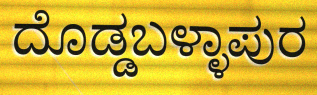
ದೊಡ್ಡಬಳ್ಳಾಪುರ